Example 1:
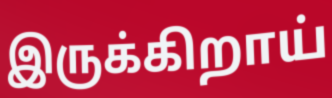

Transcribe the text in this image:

இருக்கிறாய்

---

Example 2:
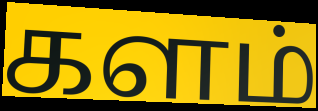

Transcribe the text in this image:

களம்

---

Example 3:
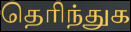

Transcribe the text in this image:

தெரிந்துக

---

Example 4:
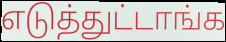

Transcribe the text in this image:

எடுத்துட்டாங்க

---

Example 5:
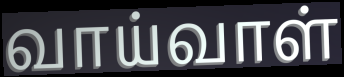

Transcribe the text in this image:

வாய்வாள்